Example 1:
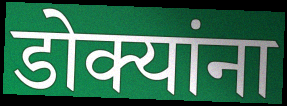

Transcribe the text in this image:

डोक्यांना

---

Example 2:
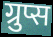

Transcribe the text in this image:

ग्रुप्स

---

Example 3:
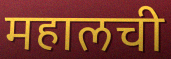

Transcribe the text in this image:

महालची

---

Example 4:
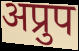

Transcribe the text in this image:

अप्रुप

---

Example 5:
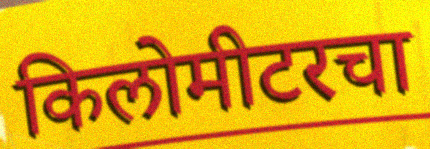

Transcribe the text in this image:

किलोमीटरचा